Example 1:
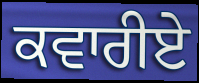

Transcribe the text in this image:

ਕਵਾਰੀਏ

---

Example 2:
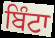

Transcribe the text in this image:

ਬਿੰਟਾ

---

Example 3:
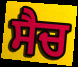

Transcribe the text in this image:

ਸੈਚ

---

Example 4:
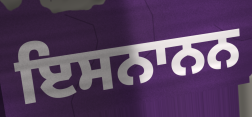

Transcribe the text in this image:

ਇਸਨਾਨਨ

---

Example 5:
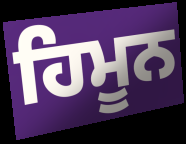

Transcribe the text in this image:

ਹਿਮੂਨ